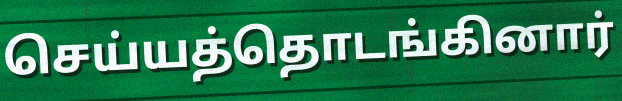
செய்யத்தொடங்கினார்